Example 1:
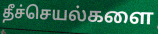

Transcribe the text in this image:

தீச்செயல்களை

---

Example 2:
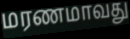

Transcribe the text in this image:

மரணமாவது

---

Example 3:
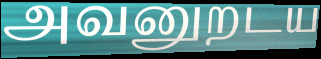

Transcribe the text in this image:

அவனுறடய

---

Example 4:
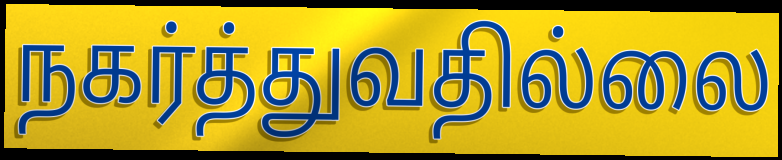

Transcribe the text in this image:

நகர்த்துவதில்லை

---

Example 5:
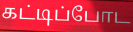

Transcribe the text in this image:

கட்டிப்போட